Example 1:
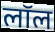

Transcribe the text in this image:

लॉल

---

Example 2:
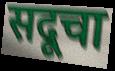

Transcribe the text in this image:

सदूचा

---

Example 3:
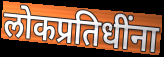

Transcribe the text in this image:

लोकप्रतिधींना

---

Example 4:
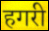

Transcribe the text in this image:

हगरी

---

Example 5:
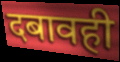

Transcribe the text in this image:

दबावही